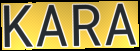
KARA